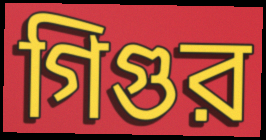
গিগুর